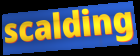
scalding